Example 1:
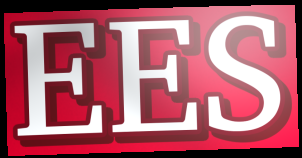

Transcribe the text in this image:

EES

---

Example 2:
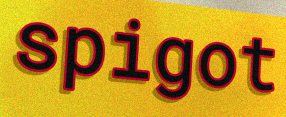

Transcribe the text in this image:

spigot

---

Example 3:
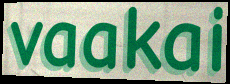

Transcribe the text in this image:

vaakai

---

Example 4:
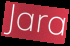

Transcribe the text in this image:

Jara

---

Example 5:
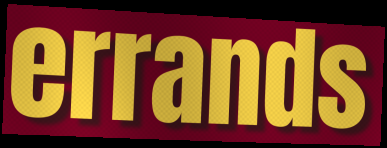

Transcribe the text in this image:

errands